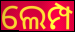
ଲେମ୍ପ